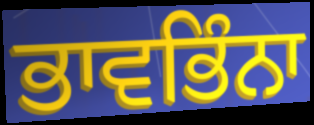
ਭਾਵਭਿੰਨਾ